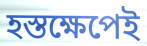
হস্তক্ষেপেই